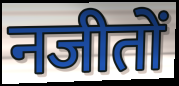
नजीतों